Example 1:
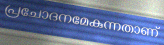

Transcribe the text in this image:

പ്രചോദനമേകുന്നതാണ്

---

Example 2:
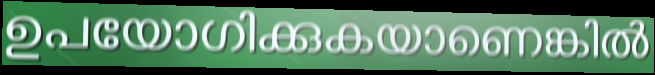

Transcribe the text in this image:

ഉപയോഗിക്കുകയാണെങ്കിൽ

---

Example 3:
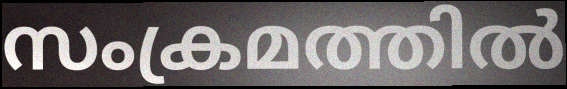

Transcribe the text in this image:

സംക്രമത്തിൽ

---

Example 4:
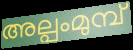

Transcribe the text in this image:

അല്പംമുമ്പ്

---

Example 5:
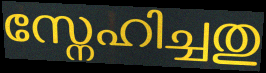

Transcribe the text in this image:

സ്നേഹിച്ചതു